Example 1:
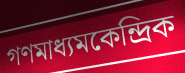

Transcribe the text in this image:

গণমাধ্যমকেন্দ্রিক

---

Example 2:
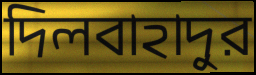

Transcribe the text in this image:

দিলবাহাদুর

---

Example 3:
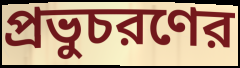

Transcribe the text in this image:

প্রভুচরণের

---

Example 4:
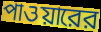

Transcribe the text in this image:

পাওয়ারের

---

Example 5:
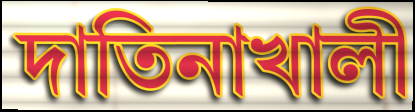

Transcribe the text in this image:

দাতিনাখালী